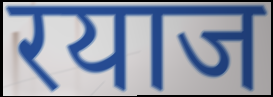
रयाज